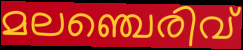
മലഞ്ചെരിവ്